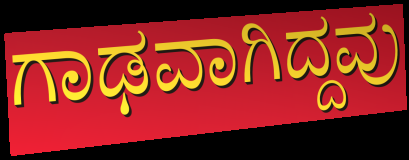
ಗಾಢವಾಗಿದ್ದವು